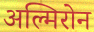
अल्मिरोन